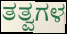
ತತ್ವಗಳ